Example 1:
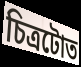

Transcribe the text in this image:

চিত্ৰটোত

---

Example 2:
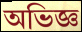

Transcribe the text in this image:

অভিজ্ঞ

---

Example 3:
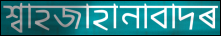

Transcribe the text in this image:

শ্বাহজাহানাবাদৰ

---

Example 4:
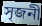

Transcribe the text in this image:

সৃজনী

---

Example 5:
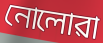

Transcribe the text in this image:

নোলোৱা